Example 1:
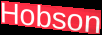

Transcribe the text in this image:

Hobson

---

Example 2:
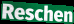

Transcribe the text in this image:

Reschen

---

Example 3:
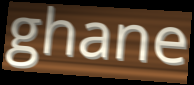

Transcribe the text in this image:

ghane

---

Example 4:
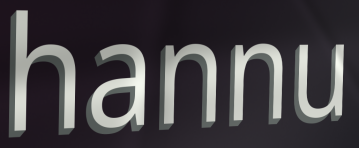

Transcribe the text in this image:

hannu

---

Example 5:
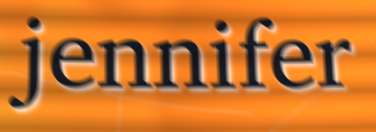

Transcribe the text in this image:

jennifer